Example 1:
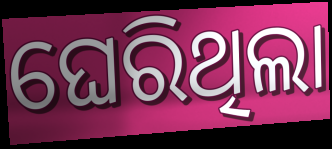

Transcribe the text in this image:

ଘେରିଥିଲା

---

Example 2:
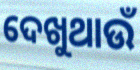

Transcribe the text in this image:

ଦେଖୁଥାଉଁ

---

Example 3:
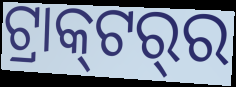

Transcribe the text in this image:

ଟ୍ରାକ୍‍ଟର୍‍ର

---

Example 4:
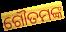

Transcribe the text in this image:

ଗୌତମଙ୍କ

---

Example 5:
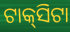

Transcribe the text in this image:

ଟାକ୍‌ସିଟା